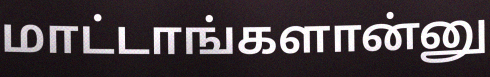
மாட்டாங்களான்னு